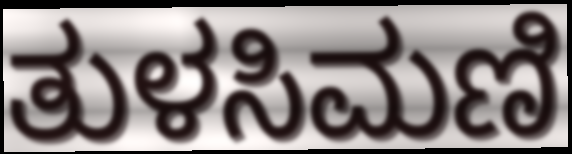
ತುಳಸಿಮಣಿ